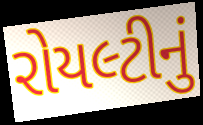
રોયલ્ટીનું